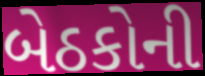
બેઠકોની